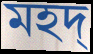
মহদ্